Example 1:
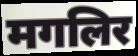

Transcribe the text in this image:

मगलिर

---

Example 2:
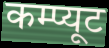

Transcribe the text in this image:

कम्प्यूट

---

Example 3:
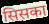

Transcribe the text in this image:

सिसका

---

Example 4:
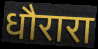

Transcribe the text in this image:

धौरारा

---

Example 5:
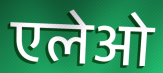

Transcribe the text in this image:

एलेओ